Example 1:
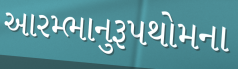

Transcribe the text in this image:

આરમ્ભાનુરૂપથોમના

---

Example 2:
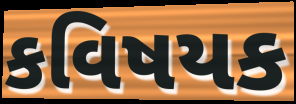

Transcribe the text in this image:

કવિષયક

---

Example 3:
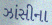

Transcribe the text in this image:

ઝાંસીના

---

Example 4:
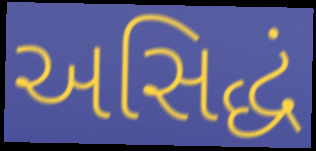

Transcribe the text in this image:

અસિદ્ધં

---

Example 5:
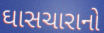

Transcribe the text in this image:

ઘાસચારાનો